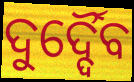
ଦୁର୍ଦ୍ଦୈବ